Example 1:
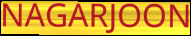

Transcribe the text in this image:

NAGARJOON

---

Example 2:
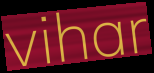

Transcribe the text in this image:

vihar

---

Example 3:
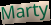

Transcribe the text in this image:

Marty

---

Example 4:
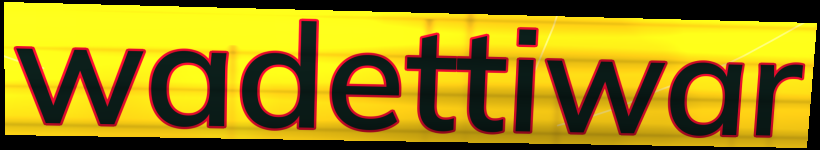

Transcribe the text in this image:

wadettiwar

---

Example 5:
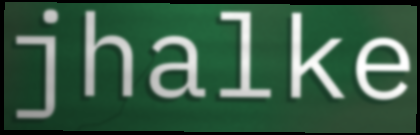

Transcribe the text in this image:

jhalke